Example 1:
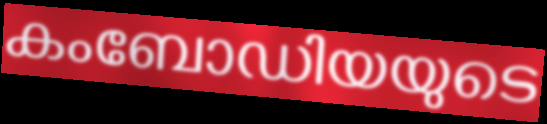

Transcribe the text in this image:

കംബോഡിയയുടെ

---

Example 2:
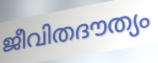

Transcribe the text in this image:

ജീവിതദൗത്യം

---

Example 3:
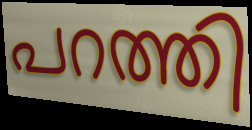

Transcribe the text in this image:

പറത്തി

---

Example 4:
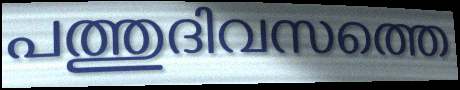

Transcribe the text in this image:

പത്തുദിവസത്തെ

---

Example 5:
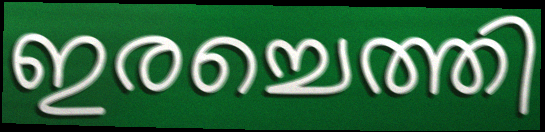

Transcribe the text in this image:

ഇരച്ചെത്തി